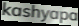
kashyapa